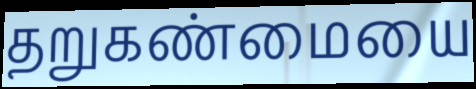
தறுகண்மையை